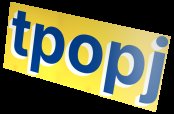
tpopj